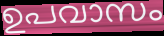
ഉപവാസം